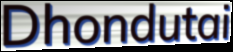
Dhondutai